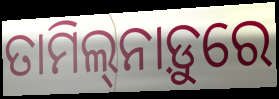
ତାମିଲ୍‌ନାଡ଼ୁରେ